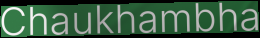
Chaukhambha